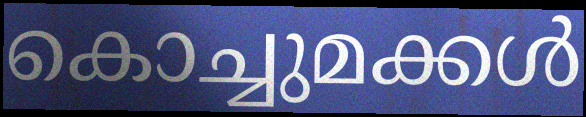
കൊച്ചുമക്കൾ